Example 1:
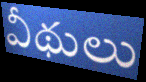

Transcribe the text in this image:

వీథులు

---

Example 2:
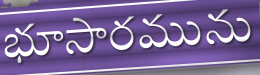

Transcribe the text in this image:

భూసారమును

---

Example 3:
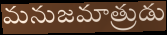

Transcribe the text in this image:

మనుజమాత్రుడు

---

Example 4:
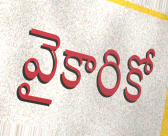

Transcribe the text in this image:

వైకారికో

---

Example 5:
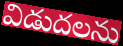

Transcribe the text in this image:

విడుదలను